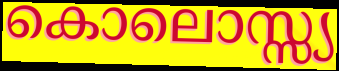
കൊലൊസ്സ്യ